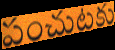
పంచుటకు